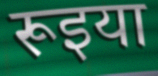
रूइया